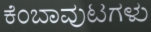
ಕೆಂಬಾವುಟಗಳು